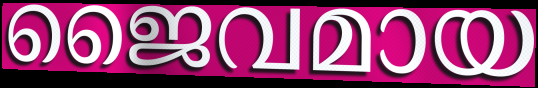
ജൈവമായ